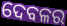
ଦେବଳର